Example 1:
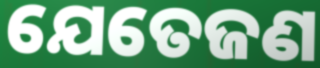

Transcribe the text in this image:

ଯେତେଜଣ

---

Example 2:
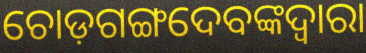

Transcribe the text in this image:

ଚୋଡ଼ଗଙ୍ଗଦେବଙ୍କଦ୍ୱାରା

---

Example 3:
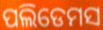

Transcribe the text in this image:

ପଲିଡେମସ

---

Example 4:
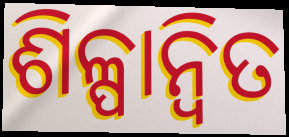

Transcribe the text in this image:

ଶିଳ୍ପାନ୍ବିତ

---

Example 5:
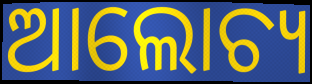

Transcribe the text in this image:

ଆଲୋଚ୍ୟ